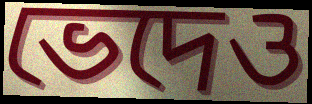
ভেদেও